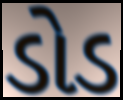
ડોડ